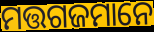
ମତ୍ତଗଜମାନେ